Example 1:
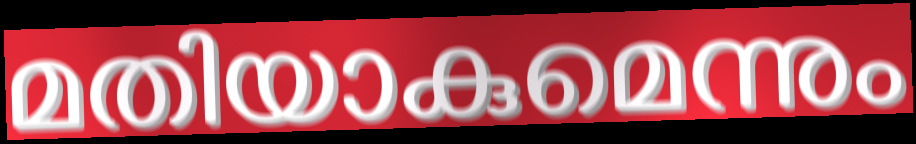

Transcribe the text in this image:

മതിയാകുമെന്നും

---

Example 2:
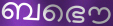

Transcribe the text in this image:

ബഭൌ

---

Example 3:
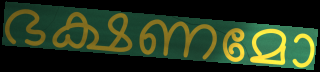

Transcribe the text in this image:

ഭക്ഷണമോ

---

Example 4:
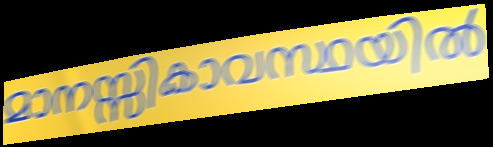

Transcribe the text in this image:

മാനസ്സികാവസ്ഥയിൽ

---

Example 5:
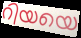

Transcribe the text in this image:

റിയയെ